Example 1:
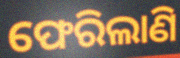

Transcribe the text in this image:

ଫେରିଲାଣି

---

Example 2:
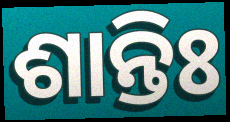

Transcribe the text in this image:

ଶାନ୍ତିଃ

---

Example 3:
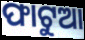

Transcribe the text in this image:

ଫାଟୁଆ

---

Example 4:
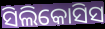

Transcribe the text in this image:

ସିଲିକୋସିସ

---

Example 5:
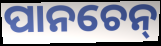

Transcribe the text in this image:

ପାନଚେନ୍